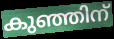
കുഞ്ഞിന്